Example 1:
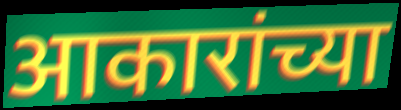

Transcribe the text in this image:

आकारांच्या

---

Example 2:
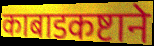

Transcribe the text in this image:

काबाडकष्टाने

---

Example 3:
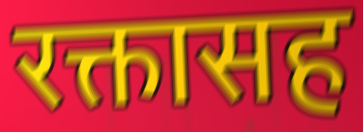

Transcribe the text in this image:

रक्तासह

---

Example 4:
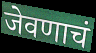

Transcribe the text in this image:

जेवणाचं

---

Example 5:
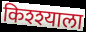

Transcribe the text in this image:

किश्श्याला